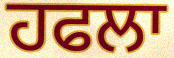
ਹਫਲਾ